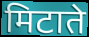
मिटाते